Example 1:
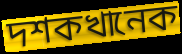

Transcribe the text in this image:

দশকখানেক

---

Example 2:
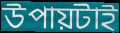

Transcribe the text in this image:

উপায়টাই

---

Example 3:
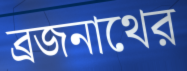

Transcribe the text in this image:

ব্রজনাথের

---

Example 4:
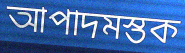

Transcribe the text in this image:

আপাদমস্তক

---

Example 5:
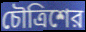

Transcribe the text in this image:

চৌত্রিশের